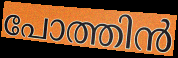
പോത്തിൻ